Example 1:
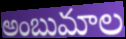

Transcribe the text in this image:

అంబుమాల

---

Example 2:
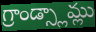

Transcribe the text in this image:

గ్రాండ్స్లామ్లు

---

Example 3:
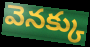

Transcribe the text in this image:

వెనక్కు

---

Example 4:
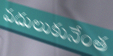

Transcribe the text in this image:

వదులుకునేంత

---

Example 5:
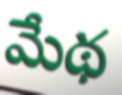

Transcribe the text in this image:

మేథ